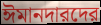
ঈমানদারদের